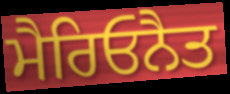
ਮੈਰਿਓਨੈਤ